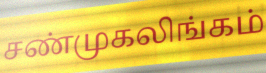
சண்முகலிங்கம்